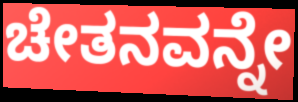
ಚೇತನವನ್ನೇ